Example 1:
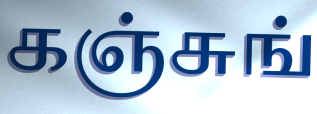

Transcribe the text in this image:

கஞ்சுங்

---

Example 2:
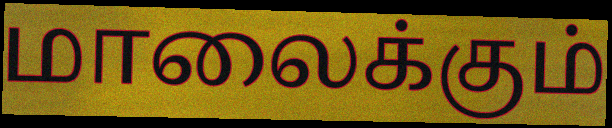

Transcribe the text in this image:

மாலைக்கும்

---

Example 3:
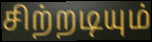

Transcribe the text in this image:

சிற்றடியும்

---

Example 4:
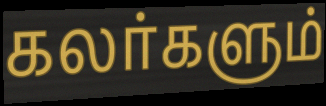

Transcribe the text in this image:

கலர்களும்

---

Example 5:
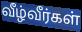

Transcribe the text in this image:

வீழ்வீர்கள்